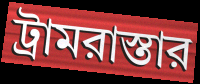
ট্রামরাস্তার